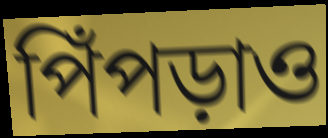
পিঁপড়াও